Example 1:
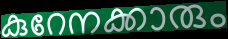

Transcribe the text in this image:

കുറേനക്കാരും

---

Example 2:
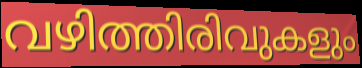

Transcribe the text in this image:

വഴിത്തിരിവുകളും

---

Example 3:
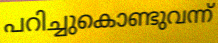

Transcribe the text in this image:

പറിച്ചുകൊണ്ടുവന്ന്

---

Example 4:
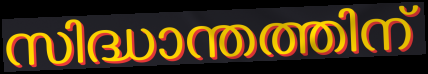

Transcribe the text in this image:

സിദ്ധാന്തത്തിന്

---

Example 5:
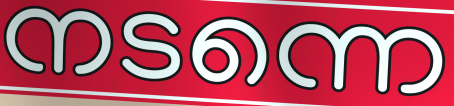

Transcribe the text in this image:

നടന്നെ